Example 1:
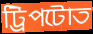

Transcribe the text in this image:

ট্ৰিপটোত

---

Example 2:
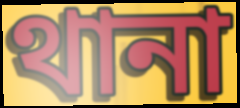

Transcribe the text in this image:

থানা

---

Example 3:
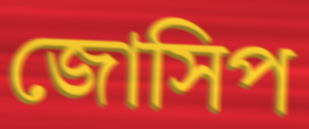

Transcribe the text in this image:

জোসিপ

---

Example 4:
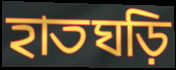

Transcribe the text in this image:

হাতঘড়ি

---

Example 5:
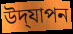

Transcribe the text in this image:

উদ্‌যাপন